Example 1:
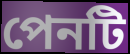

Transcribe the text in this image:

পেনটি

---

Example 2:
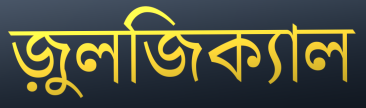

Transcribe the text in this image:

জ়ুলজিক্যাল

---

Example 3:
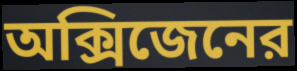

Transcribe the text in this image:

অক্সিজেনের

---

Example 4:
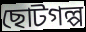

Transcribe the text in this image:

ছোটগল্প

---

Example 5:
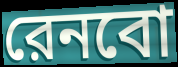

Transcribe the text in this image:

রেনবো